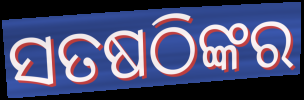
ସତଷଠିଙ୍କର